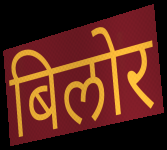
बिलोर